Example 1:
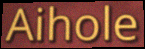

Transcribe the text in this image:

Aihole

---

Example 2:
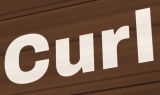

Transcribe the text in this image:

Curl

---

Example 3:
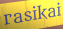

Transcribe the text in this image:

rasikai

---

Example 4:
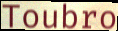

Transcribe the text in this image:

Toubro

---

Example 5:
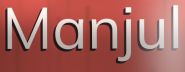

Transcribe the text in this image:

Manjul